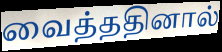
வைத்ததினால்